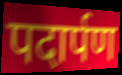
पदार्पण